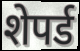
शेपर्ड